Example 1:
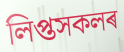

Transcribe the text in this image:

লিপ্তসকলৰ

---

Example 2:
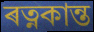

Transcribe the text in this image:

ৰত্নকান্ত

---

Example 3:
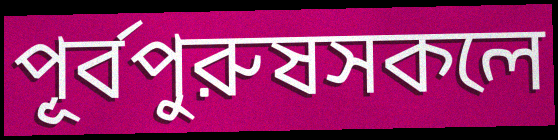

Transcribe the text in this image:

পূৰ্বপুৰুষসকলে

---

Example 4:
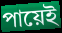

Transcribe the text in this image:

পায়েই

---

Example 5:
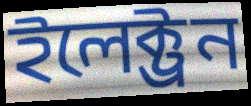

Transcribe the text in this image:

ইলেক্ট্ৰন